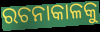
ରଚନାକାଳକୁ